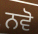
ਨਵੋ